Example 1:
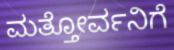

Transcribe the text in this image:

ಮತ್ತೋರ್ವನಿಗೆ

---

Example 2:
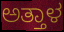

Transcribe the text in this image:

ಅತ್ತಾಳ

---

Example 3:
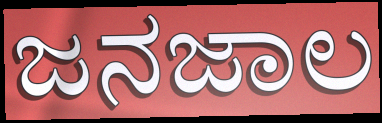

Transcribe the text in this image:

ಜನಜಾಲ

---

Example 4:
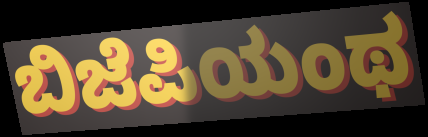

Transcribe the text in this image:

ಬಿಜೆಪಿಯಂಥ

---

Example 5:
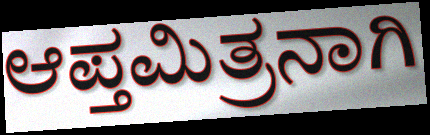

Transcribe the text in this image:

ಆಪ್ತಮಿತ್ರನಾಗಿ